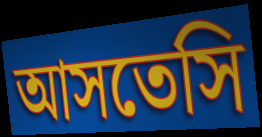
আসতেসি